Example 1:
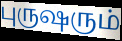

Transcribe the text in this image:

புருஷரும்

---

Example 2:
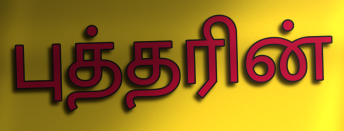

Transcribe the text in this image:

புத்தரின்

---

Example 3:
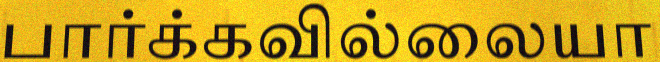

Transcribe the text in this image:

பார்க்கவில்லையா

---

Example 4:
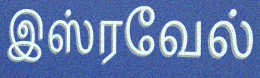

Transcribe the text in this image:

இஸ்ரவேல்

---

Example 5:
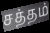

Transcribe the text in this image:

சத்தம்